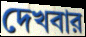
দেখবার